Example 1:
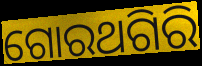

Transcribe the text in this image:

ଗୋରଥଗିରି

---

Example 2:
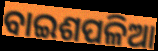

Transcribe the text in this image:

ବାଇଶପଳିଆ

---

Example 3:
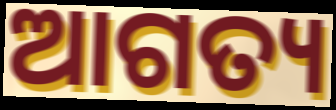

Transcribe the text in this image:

ଆଗତ୍ୟ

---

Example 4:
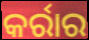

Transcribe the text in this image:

କର୍ରାର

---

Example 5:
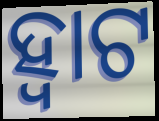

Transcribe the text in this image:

ହ୍ଵାଟ